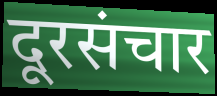
दूरसंचार